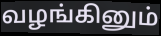
வழங்கினும்